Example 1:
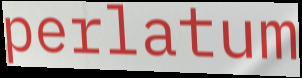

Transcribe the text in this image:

perlatum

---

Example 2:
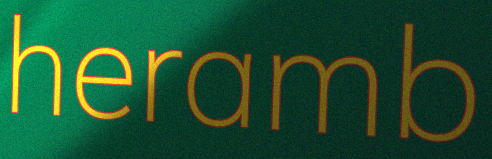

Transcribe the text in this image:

heramb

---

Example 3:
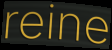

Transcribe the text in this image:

reine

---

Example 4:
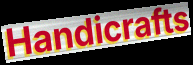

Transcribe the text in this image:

Handicrafts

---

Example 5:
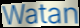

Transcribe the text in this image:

Watan